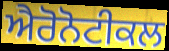
ਐਰੋਨੋਟੀਕਲ